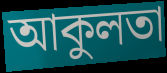
আকুলতা